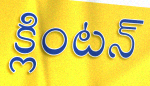
క్లింటన్